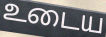
உடைய